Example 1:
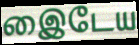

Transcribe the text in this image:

இைடேய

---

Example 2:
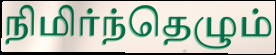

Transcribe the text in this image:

நிமிர்ந்தெழும்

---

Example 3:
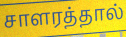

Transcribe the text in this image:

சாளரத்தால்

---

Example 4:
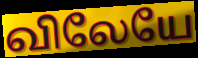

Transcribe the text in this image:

விலேயே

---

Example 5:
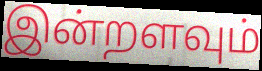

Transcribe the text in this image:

இன்றளவும்